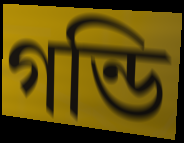
গন্ডি